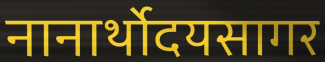
नानार्थोदयसागर